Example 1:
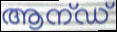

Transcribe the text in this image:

ആന്ഡ്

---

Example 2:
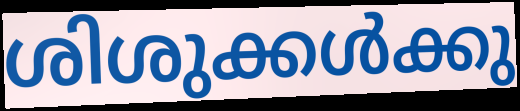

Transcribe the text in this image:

ശിശുക്കൾക്കു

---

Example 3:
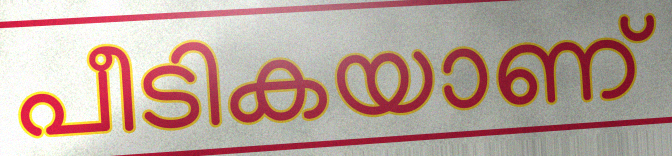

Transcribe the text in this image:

പീടികയാണ്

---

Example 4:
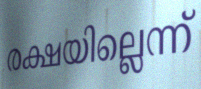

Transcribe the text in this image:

രക്ഷയില്ലെന്ന്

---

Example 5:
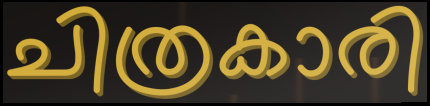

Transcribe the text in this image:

ചിത്രകാരി